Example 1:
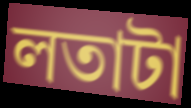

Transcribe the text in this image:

লতাটা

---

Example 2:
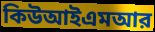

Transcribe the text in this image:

কিউআইএমআর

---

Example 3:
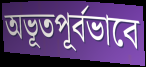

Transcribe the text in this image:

অভূতপূর্বভাবে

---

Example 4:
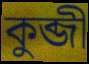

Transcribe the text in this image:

কুব্জী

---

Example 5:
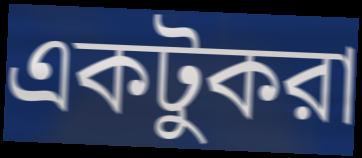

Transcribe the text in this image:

একটুকরা